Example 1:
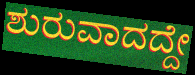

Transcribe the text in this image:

ಶುರುವಾದದ್ದೇ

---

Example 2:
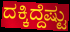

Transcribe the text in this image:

ದಕ್ಕಿದ್ದೆಷ್ಟು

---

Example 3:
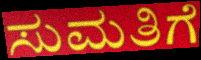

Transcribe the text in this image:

ಸುಮತಿಗೆ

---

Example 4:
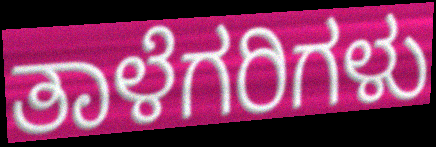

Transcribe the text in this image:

ತಾಳೆಗರಿಗಳು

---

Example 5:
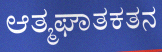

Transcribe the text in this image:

ಆತ್ಮಘಾತಕತನ